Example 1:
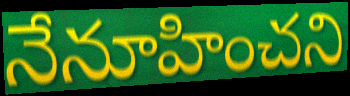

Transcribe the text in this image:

నేనూహించని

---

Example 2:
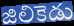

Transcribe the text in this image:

జిలికెడు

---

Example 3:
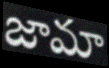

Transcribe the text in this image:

జామా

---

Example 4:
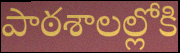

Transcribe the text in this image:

పాఠశాలల్లోకి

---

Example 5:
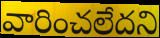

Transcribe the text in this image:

వారించలేదని